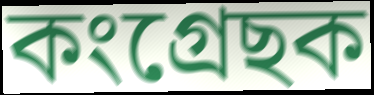
কংগ্ৰেছক